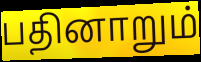
பதினாறும்